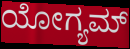
ಯೋಗ್ಯಮ್